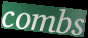
combs